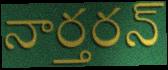
నార్తరన్